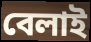
বেলাই